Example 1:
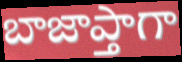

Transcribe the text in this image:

బాజాప్తాగా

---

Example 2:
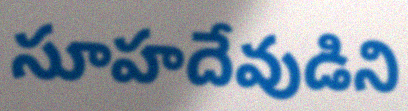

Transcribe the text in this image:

సూహదేవుడిని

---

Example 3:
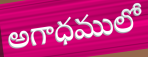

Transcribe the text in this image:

అగాధములో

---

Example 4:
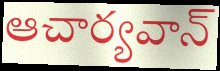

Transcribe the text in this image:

ఆచార్యవాన్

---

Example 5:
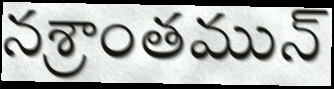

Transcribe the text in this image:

నశ్రాంతమున్